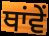
ਥਾਂਵੇਂ